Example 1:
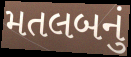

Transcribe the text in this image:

મતલબનું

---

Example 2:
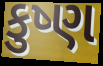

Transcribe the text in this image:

કુષ્ણ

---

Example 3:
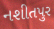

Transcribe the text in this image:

નશીતપુર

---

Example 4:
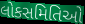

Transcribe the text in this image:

લોકસમિતિઓ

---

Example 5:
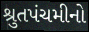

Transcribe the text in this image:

શ્રુતપંચમીનો